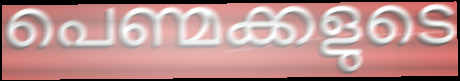
പെണ്മക്കളുടെ